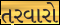
તરવારો